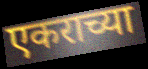
एकराच्या